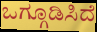
ಒಗ್ಗೂಡಿಸಿದೆ